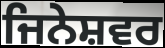
ਜਿਨੇਸ਼ਵਰ